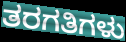
ತರಗತಿಗಳು